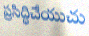
ప్రసిద్ధిచేయుచు